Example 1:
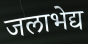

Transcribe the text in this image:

जलाभेद्य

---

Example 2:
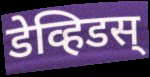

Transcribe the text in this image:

डेव्हिडस्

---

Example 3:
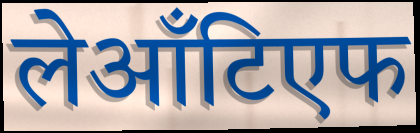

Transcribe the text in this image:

लेआँटिएफ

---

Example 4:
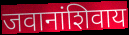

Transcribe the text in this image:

जवानांशिवाय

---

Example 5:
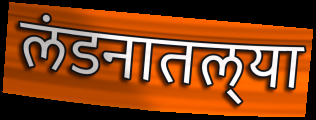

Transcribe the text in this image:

लंडनातल्या